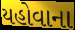
યહોવાના